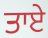
ਤਾਏ